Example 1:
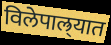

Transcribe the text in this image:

विलेपाल्र्यात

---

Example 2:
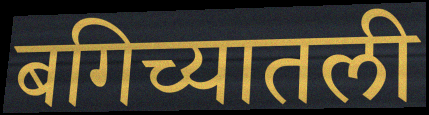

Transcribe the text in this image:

बगिच्यातली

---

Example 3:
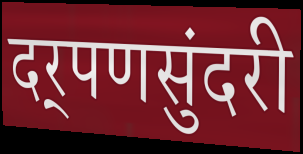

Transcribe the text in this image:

दर्पणसुंदरी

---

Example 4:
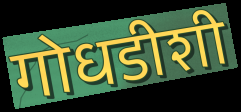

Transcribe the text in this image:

गोधडीशी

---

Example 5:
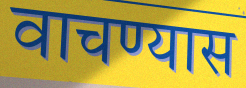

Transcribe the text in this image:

वाचण्यास